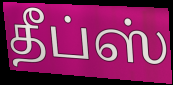
தீப்ஸ்